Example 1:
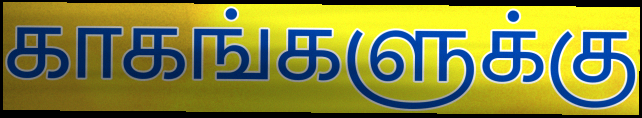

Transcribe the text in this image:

காகங்களுக்கு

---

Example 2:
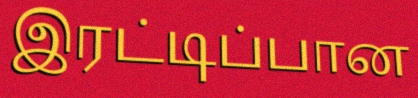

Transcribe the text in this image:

இரட்டிப்பான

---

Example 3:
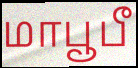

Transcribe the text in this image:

மாபூபீ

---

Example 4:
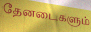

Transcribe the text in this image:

தேனடைகளும்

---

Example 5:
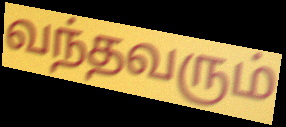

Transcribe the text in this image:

வந்தவரும்